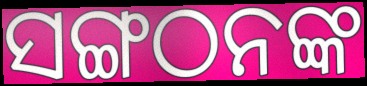
ସଙ୍ଗଠନଙ୍କ